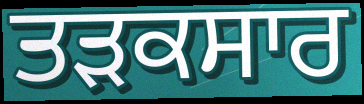
ਤੜਕਸਾਰ